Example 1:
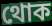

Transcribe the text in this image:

থোক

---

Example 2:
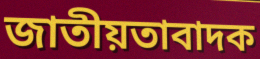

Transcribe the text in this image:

জাতীয়তাবাদক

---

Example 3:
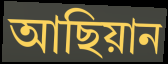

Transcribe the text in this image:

আছিয়ান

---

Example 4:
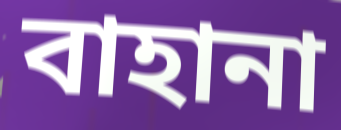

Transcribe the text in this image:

বাহানা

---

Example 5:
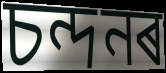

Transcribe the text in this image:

চন্দনৰ